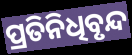
ପ୍ରତିନିଧିବୃନ୍ଦ